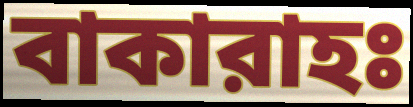
বাকারাহঃ